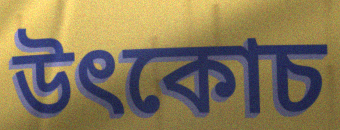
উৎকোচ